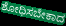
ಶೋಧಿಸಬೇಕಾದ